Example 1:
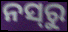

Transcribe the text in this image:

ନସ୍‍ରୁ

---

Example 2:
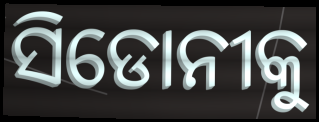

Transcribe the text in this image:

ସିଡୋନୀକୁ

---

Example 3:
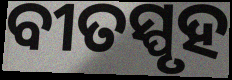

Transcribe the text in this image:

ବୀତସ୍ପୃହ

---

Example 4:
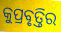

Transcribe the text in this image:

କୁପ୍ରବୃତ୍ତିର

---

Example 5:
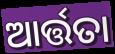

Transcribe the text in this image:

ଆର୍ତ୍ତତା